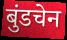
बुंडचेन